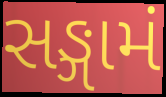
સઙ્ગામં